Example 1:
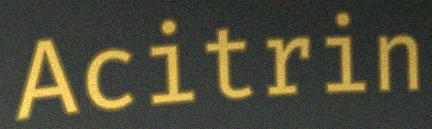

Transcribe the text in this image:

Acitrin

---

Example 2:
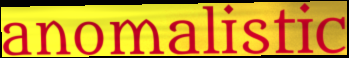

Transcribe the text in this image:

anomalistic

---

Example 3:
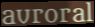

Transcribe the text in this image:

auroral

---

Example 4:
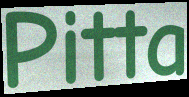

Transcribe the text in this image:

Pitta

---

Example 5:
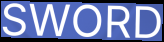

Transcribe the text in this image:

SWORD